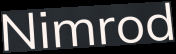
Nimrod